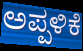
ಅಪ್ಪಳಿಕೆ